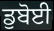
ਡੁਬੋਈ